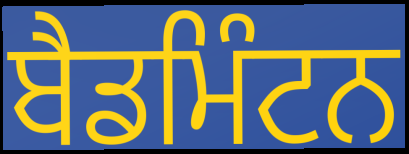
ਬੈਡਮਿੰਟਨ